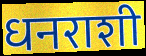
धनराशी